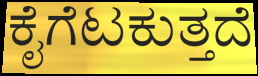
ಕೈಗೆಟಕುತ್ತದೆ